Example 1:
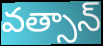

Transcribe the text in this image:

వత్సాన్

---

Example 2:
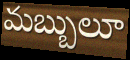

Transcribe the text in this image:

మబ్బులూ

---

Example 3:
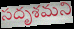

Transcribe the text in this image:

సదృశమని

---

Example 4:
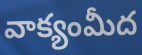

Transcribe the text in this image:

వాక్యంమీద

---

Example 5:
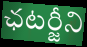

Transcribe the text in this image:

ఛటర్జీని